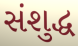
સંશુદ્ધ